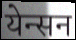
येन्सन